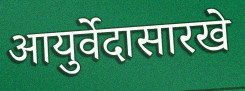
आयुर्वेदासारखे